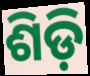
ଶିଡ଼ି